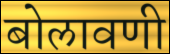
बोलावणी